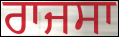
ਰਾਜਸਾ